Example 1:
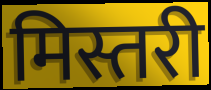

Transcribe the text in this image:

मिस्तरी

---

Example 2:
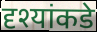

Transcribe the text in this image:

दृश्यांकडे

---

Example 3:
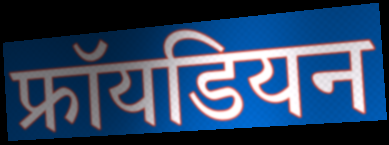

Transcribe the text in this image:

फ्रॉयडियन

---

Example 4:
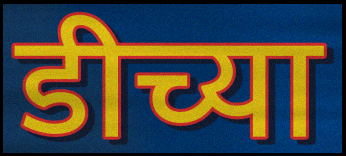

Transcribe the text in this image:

डीच्या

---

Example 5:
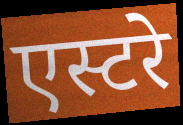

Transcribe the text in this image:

एस्टरे